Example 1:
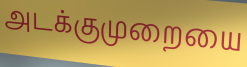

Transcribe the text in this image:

அடக்குமுறையை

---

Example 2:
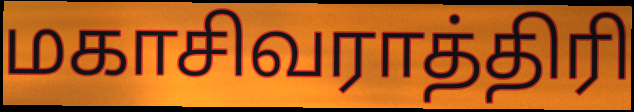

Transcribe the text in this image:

மகாசிவராத்திரி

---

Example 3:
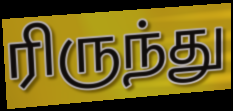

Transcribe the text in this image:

ரிருந்து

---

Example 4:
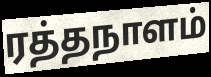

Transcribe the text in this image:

ரத்தநாளம்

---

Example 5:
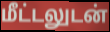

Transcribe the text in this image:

மீட்டலுடன்